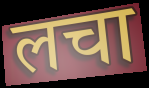
लचा